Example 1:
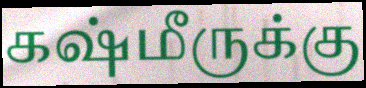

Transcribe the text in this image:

கஷ்மீருக்கு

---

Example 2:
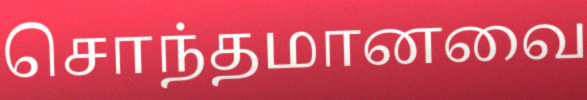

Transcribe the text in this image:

சொந்தமானவை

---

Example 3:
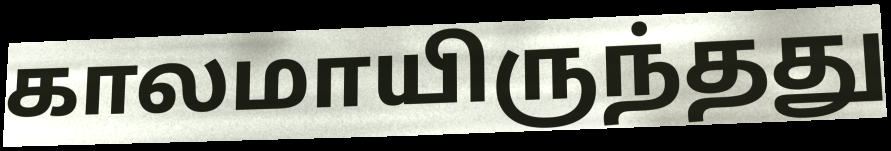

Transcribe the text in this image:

காலமாயிருந்தது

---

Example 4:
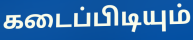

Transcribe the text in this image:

கடைப்பிடியும்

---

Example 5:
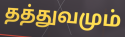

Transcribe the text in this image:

தத்துவமும்